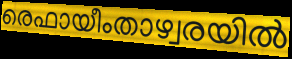
രെഫായീംതാഴ്വരയിൽ